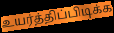
உயர்த்திப்பிடிக்க